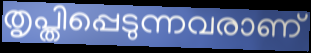
തൃപ്തിപ്പെടുന്നവരാണ്